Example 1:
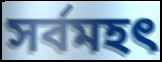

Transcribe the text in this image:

সর্বমহৎ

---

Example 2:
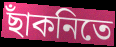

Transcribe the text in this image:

ছাঁকনিতে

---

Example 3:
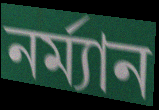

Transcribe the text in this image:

নর্ম্যান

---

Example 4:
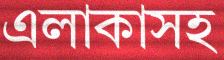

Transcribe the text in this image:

এলাকাসহ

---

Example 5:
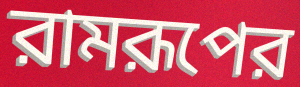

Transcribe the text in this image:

রামরূপের